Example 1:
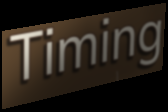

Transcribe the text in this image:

Timing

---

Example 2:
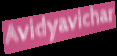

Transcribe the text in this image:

Avidyavichar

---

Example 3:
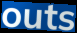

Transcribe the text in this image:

outs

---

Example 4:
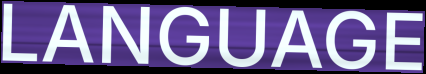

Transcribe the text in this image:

LANGUAGE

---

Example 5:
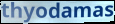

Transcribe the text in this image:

thyodamas